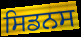
ਸਿਡਨਸ